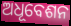
ଅଧୂବେଶନ